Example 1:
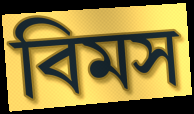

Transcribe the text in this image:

বিমস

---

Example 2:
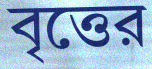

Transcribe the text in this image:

বৃত্তের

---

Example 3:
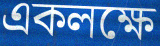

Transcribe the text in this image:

একলক্ষে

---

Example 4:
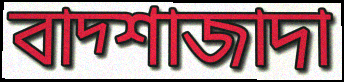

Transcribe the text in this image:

বাদ্শাজাদা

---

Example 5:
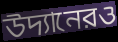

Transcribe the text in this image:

উদ্যানেরও